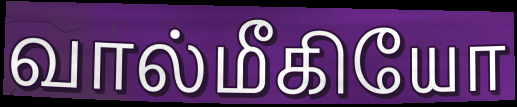
வால்மீகியோ